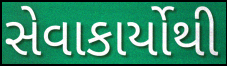
સેવાકાર્યોથી